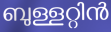
ബുള്ളറ്റിൻ